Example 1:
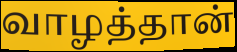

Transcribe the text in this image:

வாழத்தான்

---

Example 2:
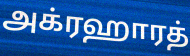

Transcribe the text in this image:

அக்ரஹாரத்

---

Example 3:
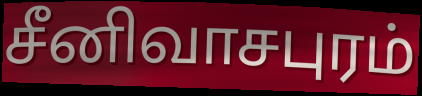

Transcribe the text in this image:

சீனிவாசபுரம்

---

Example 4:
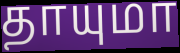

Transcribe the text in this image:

தாயுமா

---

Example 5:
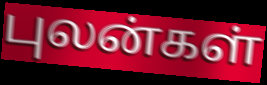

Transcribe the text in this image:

புலன்கள்